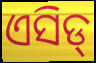
ଏସିଡ୍